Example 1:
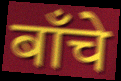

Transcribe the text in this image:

बाँचे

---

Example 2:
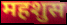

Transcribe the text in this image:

महशुस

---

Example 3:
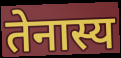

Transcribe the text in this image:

तेनास्य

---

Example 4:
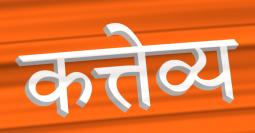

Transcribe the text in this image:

कत्तेव्य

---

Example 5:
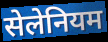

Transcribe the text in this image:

सेलेनियम